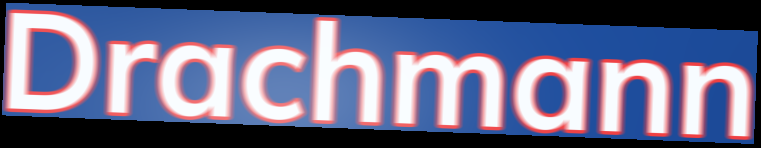
Drachmann